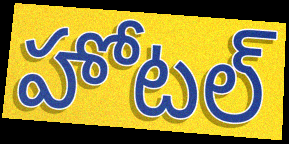
హోటల్